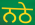
ਨਠੇ